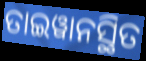
ତାଇୱାନସ୍ଥିତ